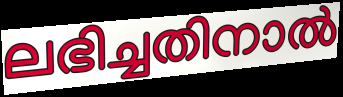
ലഭിച്ചതിനാൽ